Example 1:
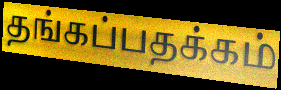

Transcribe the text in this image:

தங்கப்பதக்கம்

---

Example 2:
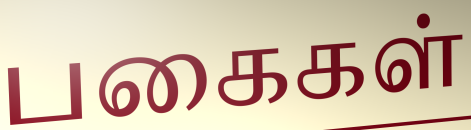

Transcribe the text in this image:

பகைகள்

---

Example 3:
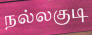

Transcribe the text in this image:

நல்லகுடி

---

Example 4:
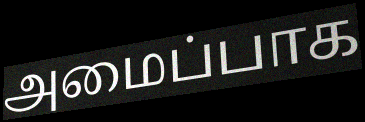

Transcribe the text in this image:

அமைப்பாக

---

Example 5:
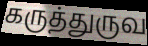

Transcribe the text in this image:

கருத்துருவ